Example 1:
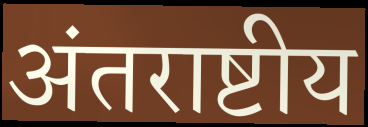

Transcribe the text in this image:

अंतराष्टीय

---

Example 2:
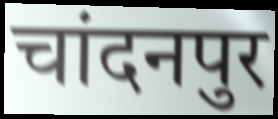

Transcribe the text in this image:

चांदनपुर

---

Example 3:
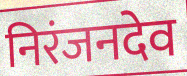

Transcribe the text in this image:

निरंजनदेव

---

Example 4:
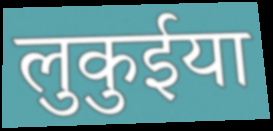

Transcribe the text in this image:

लुकुईया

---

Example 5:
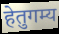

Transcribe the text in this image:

हेतुगम्य